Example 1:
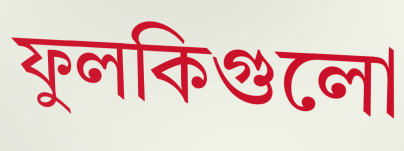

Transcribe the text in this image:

ফুলকিগুলো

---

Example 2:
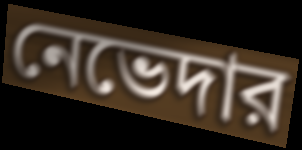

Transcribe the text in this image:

নেভেদার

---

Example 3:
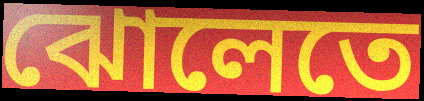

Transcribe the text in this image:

ঝোলেতে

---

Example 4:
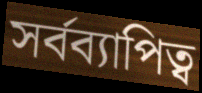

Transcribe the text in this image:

সর্বব্যাপিত্ব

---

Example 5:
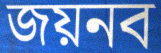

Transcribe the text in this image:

জয়নব